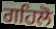
ਗਹਿਲੋ